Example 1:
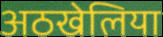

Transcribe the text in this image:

अठखेलिया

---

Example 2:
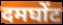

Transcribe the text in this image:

दमघोंट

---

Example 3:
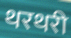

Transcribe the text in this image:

थरथरी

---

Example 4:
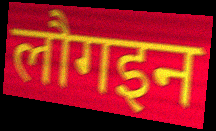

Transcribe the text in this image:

लौगइन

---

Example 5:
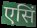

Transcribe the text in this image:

एसिं